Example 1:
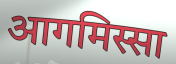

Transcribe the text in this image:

आगमिस्सा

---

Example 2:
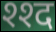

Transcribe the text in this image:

श्श्द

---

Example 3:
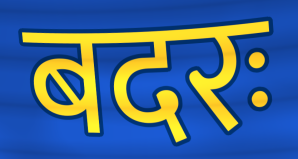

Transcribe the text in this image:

बदरः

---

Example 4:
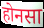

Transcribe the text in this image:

होनसा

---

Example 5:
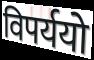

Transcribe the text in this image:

विपर्ययो